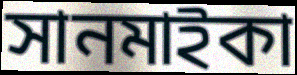
সানমাইকা